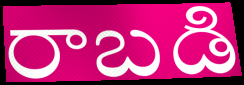
రాబడి